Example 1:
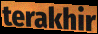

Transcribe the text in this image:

terakhir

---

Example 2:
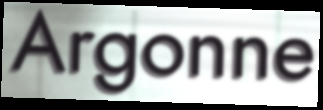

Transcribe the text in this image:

Argonne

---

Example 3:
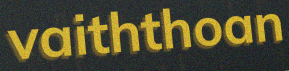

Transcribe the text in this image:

vaiththoan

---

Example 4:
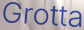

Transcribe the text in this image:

Grotta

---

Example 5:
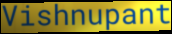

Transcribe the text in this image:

Vishnupant